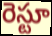
రెస్టూ